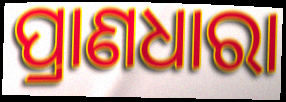
ପ୍ରାଣଧାରା